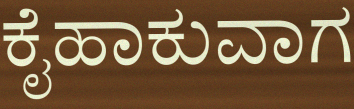
ಕೈಹಾಕುವಾಗ